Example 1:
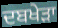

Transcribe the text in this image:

ਦਬਖੇੜਾ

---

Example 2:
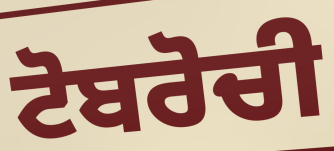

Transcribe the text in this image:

ਟੋਬਰੋਚੀ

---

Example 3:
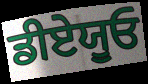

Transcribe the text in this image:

ਡੀਏਯੂਓ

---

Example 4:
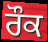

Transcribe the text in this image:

ਰੌਕ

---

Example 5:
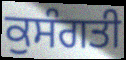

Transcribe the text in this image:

ਕੁਸੰਗਤੀ